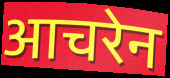
आचरेन